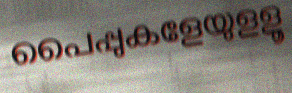
പൈപ്പുകളേയുളളൂ